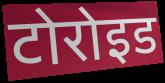
टोरोइड